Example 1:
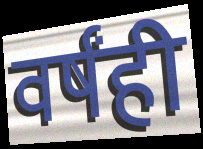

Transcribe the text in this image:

वर्षंही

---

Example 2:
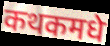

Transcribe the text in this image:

कथकमधे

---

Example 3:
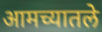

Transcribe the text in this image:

आमच्यातले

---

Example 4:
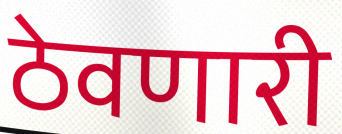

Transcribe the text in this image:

ठेवणारी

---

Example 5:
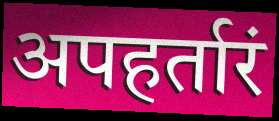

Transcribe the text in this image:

अपहर्तारं